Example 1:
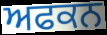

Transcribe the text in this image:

ਅਫਕਨ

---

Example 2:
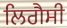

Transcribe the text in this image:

ਲਿਗੈਸੀ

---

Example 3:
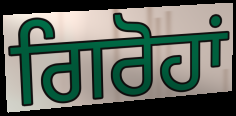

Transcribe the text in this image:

ਗਿਰੋਹਾਂ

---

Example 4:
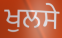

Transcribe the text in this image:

ਖੁਲਸੇ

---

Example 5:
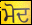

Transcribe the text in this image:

ਮੋਦ